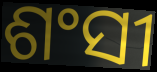
ଶଂସୀ